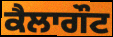
ਕੈਲਾਗੌਟ